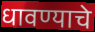
धावण्याचे